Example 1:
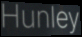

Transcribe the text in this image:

Hunley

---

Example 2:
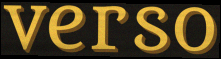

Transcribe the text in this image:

verso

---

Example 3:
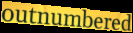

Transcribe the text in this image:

outnumbered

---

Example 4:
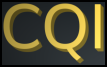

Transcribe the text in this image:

CQI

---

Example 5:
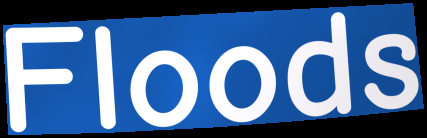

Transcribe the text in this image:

Floods